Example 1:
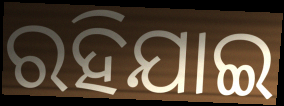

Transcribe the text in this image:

ରହିଯାଇ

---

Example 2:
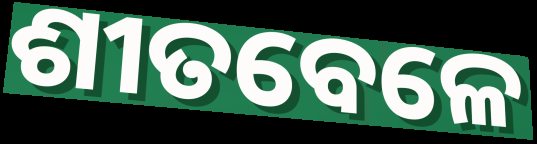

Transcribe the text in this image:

ଶୀତବେଳେ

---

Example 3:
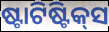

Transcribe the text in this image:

ଷ୍ଟାଟିଷ୍ଟିକ୍‍ସ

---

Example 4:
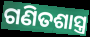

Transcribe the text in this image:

ଗଣିତଶାସ୍ତ୍ର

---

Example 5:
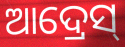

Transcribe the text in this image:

ଆଦ୍ରେସ୍